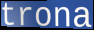
trona